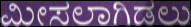
ಮೀಸಲಾಗಿಡಲು